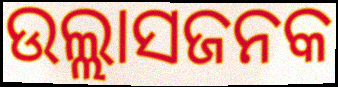
ଉଲ୍ଲାସଜନକ